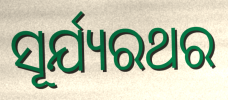
ସୂର୍ଯ୍ୟରଥର